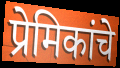
प्रेमिकांचे